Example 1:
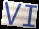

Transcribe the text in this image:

VI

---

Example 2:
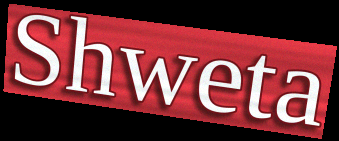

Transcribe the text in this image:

Shweta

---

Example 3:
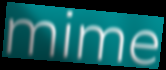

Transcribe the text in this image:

mime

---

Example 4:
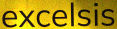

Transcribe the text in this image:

excelsis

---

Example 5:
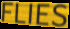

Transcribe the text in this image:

FLIES